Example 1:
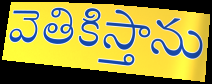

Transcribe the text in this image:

వెతికిస్తాను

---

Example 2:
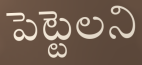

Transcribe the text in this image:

పెట్టెలని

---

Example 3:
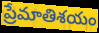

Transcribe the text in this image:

ప్రేమాతిశయం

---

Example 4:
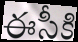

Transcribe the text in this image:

ఈసీకి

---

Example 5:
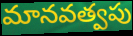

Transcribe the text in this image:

మానవత్వపు